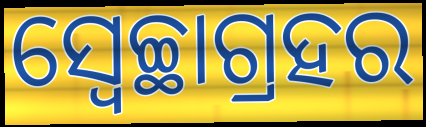
ସ୍ବେଚ୍ଛାଗ୍ରହର